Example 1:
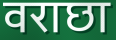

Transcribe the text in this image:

वराछा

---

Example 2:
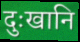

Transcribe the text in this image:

दुःखानि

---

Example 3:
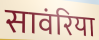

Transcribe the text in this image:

सावंरिया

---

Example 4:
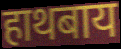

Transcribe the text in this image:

हाथबाय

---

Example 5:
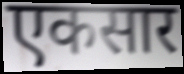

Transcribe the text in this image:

एकसार